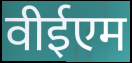
वीईएम